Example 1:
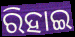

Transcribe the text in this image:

ରିହାଇ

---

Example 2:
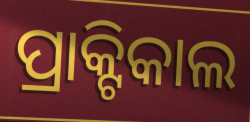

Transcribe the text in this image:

ପ୍ରାକ୍ଟିକାଲ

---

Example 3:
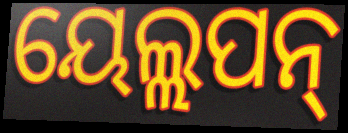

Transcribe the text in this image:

ୟେଲ୍ଲପନ୍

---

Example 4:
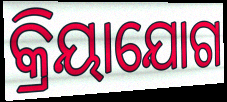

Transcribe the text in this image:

କ୍ରିୟାଯୋଗ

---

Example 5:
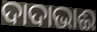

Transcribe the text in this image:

ଦାଦାଭାଈ